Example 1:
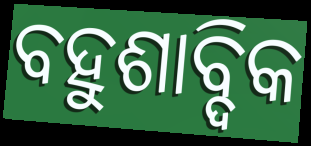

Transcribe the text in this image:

ବହୁଶାବ୍ଦିକ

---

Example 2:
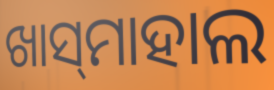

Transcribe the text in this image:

ଖାସ୍‌ମାହାଲ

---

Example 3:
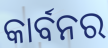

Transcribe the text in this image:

କାର୍ବନର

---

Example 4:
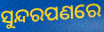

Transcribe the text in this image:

ସୁନ୍ଦରପଣରେ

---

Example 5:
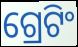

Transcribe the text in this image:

ଗ୍ରେଟିଂ